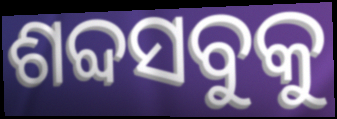
ଶବ୍ଦସବୁକୁ